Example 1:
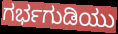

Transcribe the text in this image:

ಗರ್ಭಗುಡಿಯು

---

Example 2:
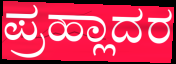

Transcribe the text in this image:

ಪ್ರಹ್ಲಾದರ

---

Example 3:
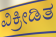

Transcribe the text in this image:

ವಿಕ್ರೀಡಿತ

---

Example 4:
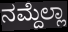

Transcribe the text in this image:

ನಮ್ದೆಲ್ಲಾ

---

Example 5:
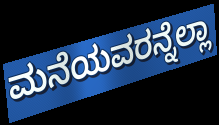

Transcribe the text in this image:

ಮನೆಯವರನ್ನೆಲ್ಲಾ